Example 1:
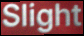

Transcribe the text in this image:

Slight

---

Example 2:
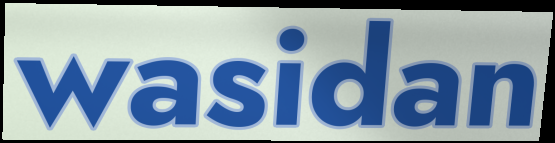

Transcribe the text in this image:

wasidan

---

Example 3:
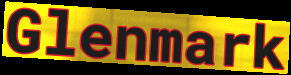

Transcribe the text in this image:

Glenmark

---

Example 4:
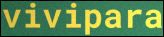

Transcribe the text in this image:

vivipara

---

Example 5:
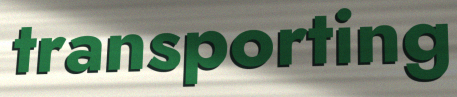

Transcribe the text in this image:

transporting